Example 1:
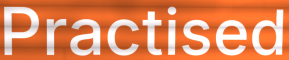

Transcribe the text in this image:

Practised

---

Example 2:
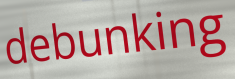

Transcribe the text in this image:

debunking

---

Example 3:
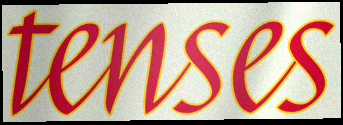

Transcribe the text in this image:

tenses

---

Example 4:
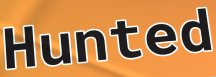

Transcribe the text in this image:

Hunted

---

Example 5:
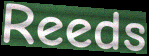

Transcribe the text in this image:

Reeds